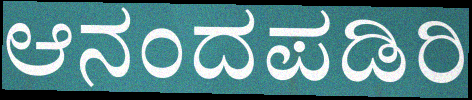
ಆನಂದಪಡಿರಿ